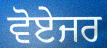
ਵੋਏਜਰ